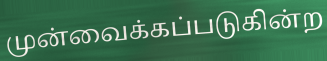
முன்வைக்கப்படுகின்ற